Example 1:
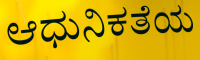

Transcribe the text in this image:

ಆಧುನಿಕತೆಯ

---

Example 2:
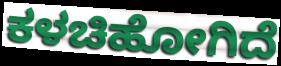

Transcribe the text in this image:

ಕಳಚಿಹೋಗಿದೆ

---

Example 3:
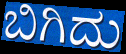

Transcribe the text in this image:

ಬಿಗಿದು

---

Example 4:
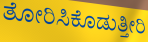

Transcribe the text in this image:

ತೋರಿಸಿಕೊಡುತ್ತೀರಿ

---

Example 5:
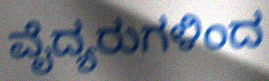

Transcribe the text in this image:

ವೈದ್ಯರುಗಳಿಂದ